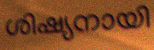
ശിഷ്യനായി